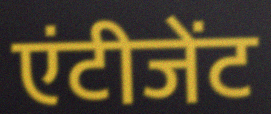
एंटीजेंट